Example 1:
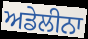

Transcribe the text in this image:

ਅਡੇਲੀਨਾ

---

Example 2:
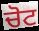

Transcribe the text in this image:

ਚੋਟ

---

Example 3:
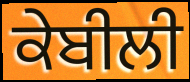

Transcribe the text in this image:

ਕੇਬੀਲੀ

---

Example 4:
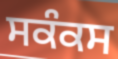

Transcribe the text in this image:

ਸਕੰਕਸ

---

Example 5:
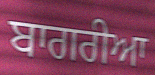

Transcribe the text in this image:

ਬਾਗਰੀਆ